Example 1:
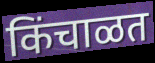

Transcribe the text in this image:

किंचाळत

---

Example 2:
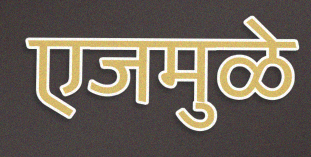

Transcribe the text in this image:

एजमुळे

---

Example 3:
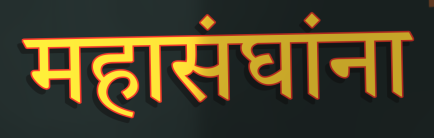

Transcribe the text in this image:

महासंघांना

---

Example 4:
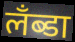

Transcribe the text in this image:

लँब्डा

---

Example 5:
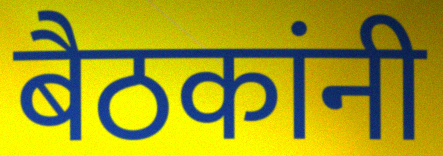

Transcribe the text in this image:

बैठकांनी